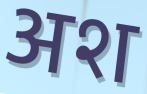
अश